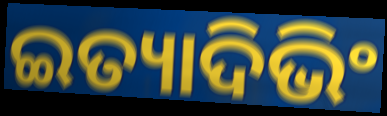
ଇତ୍ୟାଦିଭିଂ